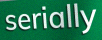
serially